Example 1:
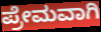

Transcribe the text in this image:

ಪ್ರೇಮವಾಗಿ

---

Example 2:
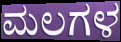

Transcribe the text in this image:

ಮಲಗಳ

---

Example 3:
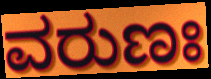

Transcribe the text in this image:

ವರುಣಃ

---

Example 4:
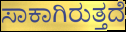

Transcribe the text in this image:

ಸಾಕಾಗಿರುತ್ತದೆ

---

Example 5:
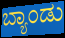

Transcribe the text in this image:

ಬ್ಯಾಂಡು